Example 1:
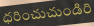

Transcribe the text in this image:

ధరించుచుండిరి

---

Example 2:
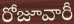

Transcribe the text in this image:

రోజూవారీ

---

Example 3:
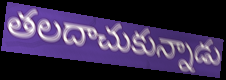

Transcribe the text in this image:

తలదాచుకున్నాడు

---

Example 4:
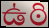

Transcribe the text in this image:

ఉఠి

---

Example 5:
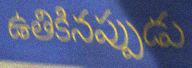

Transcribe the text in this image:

ఉతికినప్పుడు